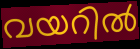
വയറിൽ